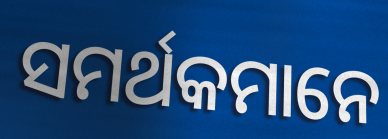
ସମର୍ଥକମାନେ